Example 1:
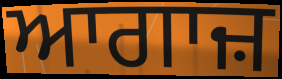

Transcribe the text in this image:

ਆਗਾਜ਼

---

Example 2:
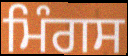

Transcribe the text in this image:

ਮਿੰਗਸ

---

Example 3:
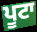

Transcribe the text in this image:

ਪੂਟਾ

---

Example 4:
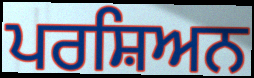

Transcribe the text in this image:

ਪਰਸ਼ਿਅਨ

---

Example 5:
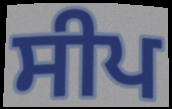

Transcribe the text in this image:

ਸੀਪ